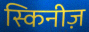
स्किनीज़